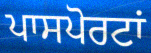
ਪਾਸਪੋਰਟਾਂ